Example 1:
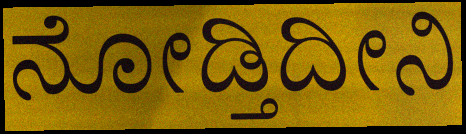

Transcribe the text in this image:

ನೋಡ್ತಿದೀನಿ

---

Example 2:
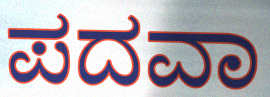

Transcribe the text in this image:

ಪದವಾ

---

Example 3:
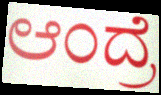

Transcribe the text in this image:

ಆಂದ್ರೆ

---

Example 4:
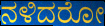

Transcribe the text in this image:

ನಳಿದರೋ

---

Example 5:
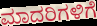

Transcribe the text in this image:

ಮಾದರಿಗಳಿಗೆ